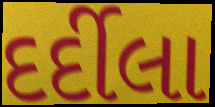
દર્દીલા